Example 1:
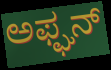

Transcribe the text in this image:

ಅಫ್ಘನ್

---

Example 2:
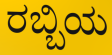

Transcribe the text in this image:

ರಬ್ಬಿಯ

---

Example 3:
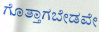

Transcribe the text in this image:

ಗೊತ್ತಾಗಬೇಡವೇ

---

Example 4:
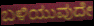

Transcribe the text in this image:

ಬಳಿಯುವುದೇ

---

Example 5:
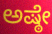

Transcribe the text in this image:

ಅಷ್ಠೇ